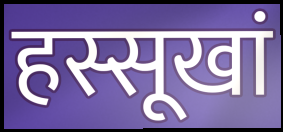
हस्सूखां